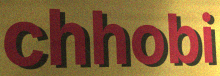
chhobi